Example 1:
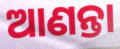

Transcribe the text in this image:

ଆଣନ୍ତା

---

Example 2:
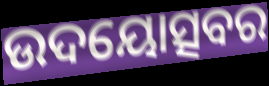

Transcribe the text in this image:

ଉଦୟୋତ୍ସବର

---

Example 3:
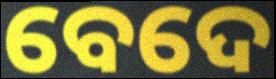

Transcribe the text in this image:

ବେଦେ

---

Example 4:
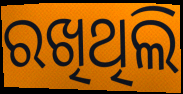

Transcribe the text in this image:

ରଖିଥିଲି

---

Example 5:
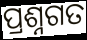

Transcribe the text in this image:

ପ୍ରଶ୍ନଗତ